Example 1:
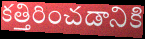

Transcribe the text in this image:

కత్తిరించడానికి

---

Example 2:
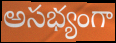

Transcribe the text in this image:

అసభ్యంగా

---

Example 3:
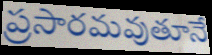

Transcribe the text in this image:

ప్రసారమవుతూనే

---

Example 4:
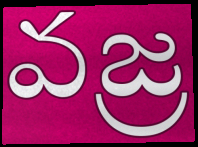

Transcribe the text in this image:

వజ్ర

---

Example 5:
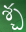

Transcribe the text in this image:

శ్చ